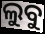
ଲୁବୁ